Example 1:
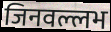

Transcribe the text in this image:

जिनवल्लभ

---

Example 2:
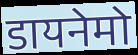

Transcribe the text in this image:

डायनेमो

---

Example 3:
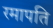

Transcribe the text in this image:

रमापति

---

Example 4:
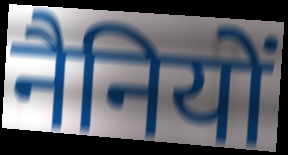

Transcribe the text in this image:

नैनियों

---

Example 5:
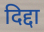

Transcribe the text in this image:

दिद्दा